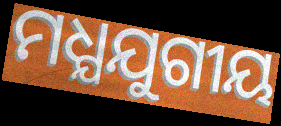
ମଧ୍ଯଯୁଗୀୟ